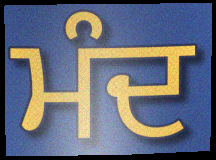
ਮੰਦ